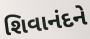
શિવાનંદને